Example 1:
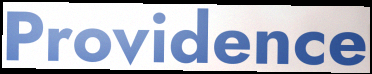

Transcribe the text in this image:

Providence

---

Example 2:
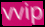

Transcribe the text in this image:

vvip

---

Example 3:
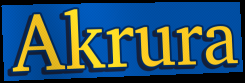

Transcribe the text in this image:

Akrura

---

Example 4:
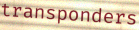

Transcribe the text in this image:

transponders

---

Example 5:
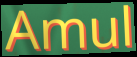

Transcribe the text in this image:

Amul